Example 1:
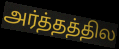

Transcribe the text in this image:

அர்த்தத்தில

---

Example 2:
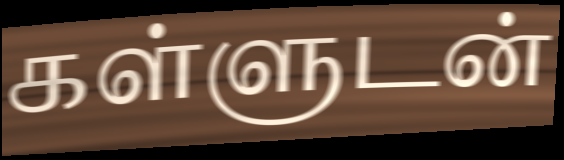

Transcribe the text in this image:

கள்ளுடன்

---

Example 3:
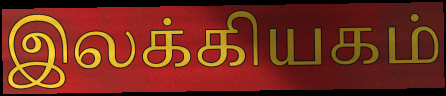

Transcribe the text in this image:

இலக்கியகம்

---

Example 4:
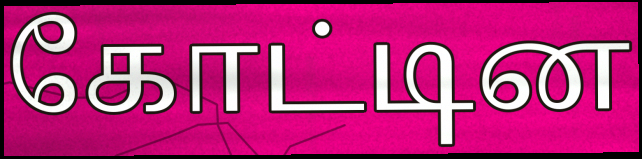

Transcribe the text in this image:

கோட்டின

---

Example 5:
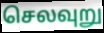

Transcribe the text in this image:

செலவுறு